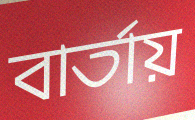
বার্তায়